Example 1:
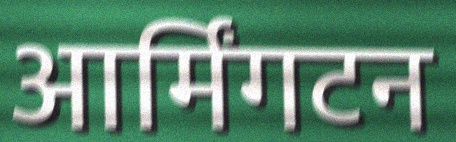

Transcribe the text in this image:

आर्मिंगटन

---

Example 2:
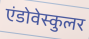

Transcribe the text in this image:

एंडोवेस्कुलर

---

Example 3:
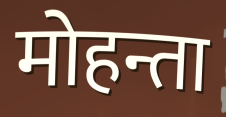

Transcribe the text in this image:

मोहन्ता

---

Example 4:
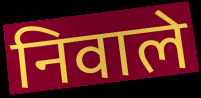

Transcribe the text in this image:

निवाले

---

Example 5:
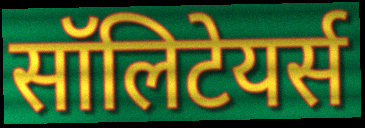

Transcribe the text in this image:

सॉलिटेयर्स